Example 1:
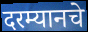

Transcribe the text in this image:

दरम्यानचे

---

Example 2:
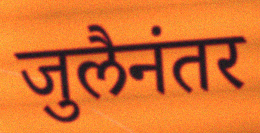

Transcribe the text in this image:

जुलैनंतर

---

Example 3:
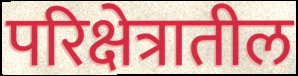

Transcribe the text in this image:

परिक्षेत्रातील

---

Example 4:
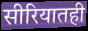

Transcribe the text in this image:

सीरियातही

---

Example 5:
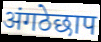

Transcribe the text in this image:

अंगठेछाप